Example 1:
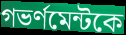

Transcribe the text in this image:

গভর্ণমেন্টকে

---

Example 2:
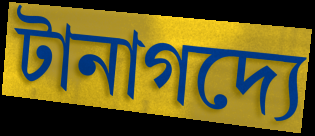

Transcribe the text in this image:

টানাগদ্যে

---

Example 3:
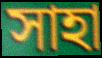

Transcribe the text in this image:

সাহা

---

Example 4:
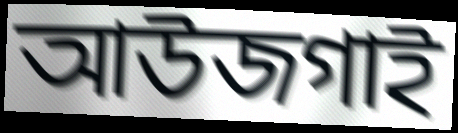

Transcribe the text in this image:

আউজগাই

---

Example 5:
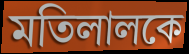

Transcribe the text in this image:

মতিলালকে